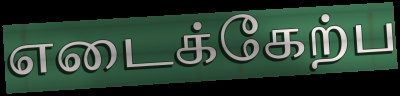
எடைக்கேற்ப